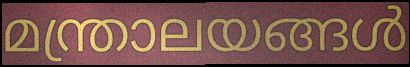
മന്ത്രാലയങ്ങൾ